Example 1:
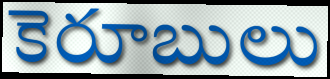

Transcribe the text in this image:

కెరూబులు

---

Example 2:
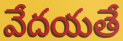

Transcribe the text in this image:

వేదయతే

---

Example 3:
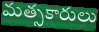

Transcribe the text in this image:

మత్సకారులు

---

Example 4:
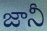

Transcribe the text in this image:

జానీ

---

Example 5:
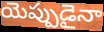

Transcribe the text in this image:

యెప్పుడైనా